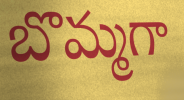
బొమ్మగా